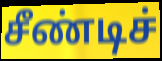
சீண்டிச்